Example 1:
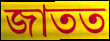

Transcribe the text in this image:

জাতত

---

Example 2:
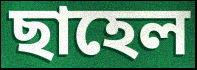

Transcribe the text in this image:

ছাহেল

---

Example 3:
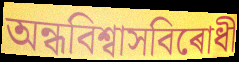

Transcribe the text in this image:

অন্ধবিশ্বাসবিৰোধী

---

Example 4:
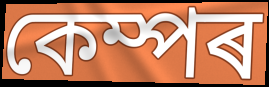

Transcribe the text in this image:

কেম্পৰ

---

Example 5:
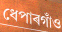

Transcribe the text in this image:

ধেপাৰগাঁও